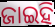
ଜାଇହି